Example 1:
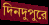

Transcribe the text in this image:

দিনদুপুরে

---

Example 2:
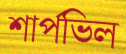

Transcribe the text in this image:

শার্পভিল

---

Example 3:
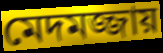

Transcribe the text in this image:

মেদমজ্জায়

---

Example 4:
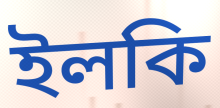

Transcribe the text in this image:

ইলকি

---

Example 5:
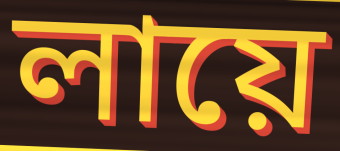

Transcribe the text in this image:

লায়ে